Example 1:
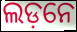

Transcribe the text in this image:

ଲଡ଼ନେ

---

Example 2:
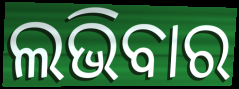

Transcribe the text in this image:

ଲଭିବାର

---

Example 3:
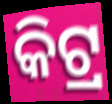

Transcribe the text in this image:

କିଟ୍ର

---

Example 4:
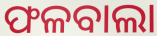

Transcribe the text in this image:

ଫଳବାଲା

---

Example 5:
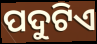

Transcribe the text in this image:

ପଦୁଟିଏ